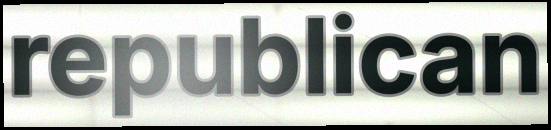
republican